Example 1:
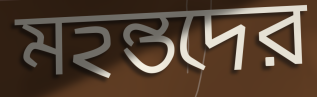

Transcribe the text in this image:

মহন্তদের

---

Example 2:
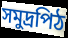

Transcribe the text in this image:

সমুদ্রপিঠ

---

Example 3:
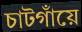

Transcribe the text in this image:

চাটগাঁয়ে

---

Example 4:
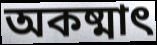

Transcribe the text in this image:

অকষ্মাৎ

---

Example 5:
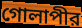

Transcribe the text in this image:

গোলাপীর